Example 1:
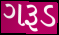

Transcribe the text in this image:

ગરૂડ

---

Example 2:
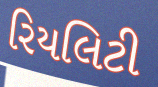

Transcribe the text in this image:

રિયલિટી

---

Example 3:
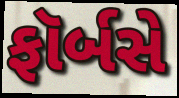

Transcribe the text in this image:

ફૉર્બસે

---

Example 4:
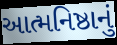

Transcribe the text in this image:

આત્મનિષ્ઠાનું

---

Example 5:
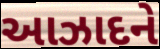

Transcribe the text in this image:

આઝાદને